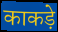
काकड़े